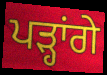
ਪੜ੍ਹਾਂਗੇ